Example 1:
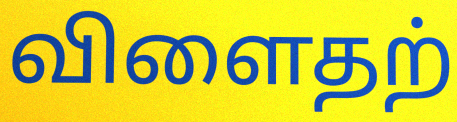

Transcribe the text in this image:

விளைதற்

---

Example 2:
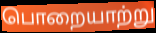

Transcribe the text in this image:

பொறையாற்று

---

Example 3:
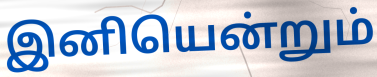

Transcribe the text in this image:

இனியென்றும்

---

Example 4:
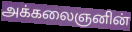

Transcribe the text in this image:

அக்கலைஞனின்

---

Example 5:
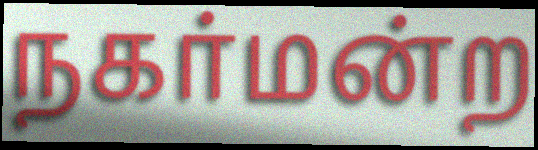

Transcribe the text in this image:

நகர்மன்ற